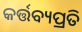
କର୍ତ୍ତବ୍ୟପ୍ରତି